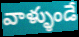
వాళ్ళుండే